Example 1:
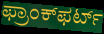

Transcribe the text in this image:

ಫ್ರಾಂಕ್‌ಫರ್ಟ್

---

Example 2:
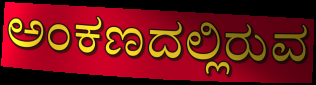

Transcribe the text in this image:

ಅಂಕಣದಲ್ಲಿರುವ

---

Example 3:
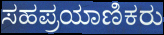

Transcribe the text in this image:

ಸಹಪ್ರಯಾಣಿಕರು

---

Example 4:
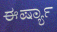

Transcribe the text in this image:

ಈರ್ಷ್ಯಾ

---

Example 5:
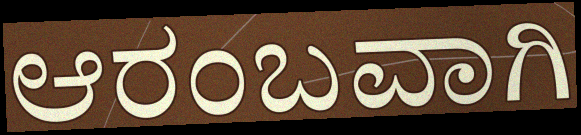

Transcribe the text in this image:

ಆರಂಬವಾಗಿ